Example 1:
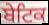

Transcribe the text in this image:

ਬੇਟਿਕ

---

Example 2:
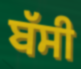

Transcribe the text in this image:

ਬੱਸੀ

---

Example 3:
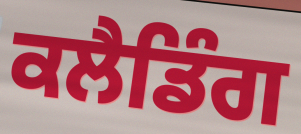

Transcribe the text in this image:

ਕਲੈਡਿੰਗ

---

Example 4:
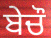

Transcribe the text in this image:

ਬੇਚੌ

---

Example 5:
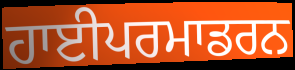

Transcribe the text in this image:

ਹਾਈਪਰਮਾਡਰਨ